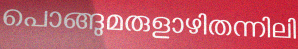
പൊങ്ങുമരുളാഴിതന്നിലി